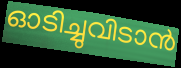
ഓടിച്ചുവിടാൻ